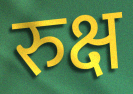
रुक्ष